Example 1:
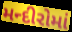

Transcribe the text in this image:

મન્દીરોમાં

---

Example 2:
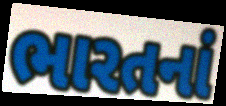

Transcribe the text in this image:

ભારતનાં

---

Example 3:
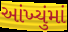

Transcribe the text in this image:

આંખ્યુંમાં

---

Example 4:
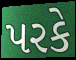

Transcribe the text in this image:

પરકે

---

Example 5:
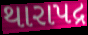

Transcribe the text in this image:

થારાપદ્ર